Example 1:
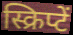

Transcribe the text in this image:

स्क्रिप्टें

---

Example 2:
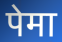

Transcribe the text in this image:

पेमा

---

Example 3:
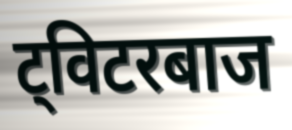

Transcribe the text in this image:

ट्विटरबाज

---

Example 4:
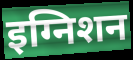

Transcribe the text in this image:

इग्निशन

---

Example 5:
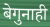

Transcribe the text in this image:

बेगुनाही